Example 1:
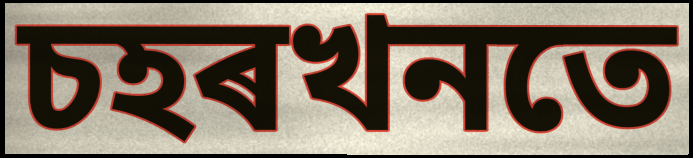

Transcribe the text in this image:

চহৰখনতে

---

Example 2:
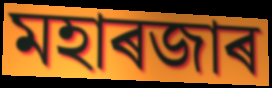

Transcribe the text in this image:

মহাৰজাৰ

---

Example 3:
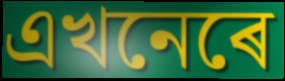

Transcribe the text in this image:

এখনেৰে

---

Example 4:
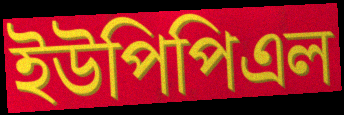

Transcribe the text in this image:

ইউপিপিএল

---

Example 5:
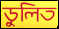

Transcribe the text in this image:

ডুলিত